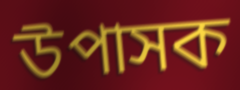
উপাসক